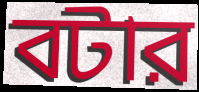
বটার